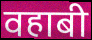
वहाबी